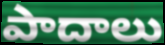
పాదాలు